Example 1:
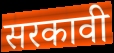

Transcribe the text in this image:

सरकावी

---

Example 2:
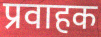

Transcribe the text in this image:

प्रवाहक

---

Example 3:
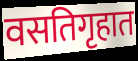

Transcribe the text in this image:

वसतिगृहात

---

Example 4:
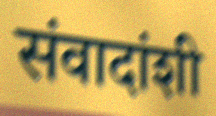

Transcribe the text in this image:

संवादांशी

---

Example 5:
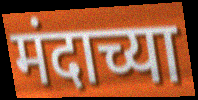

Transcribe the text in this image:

मंदाच्या